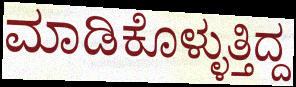
ಮಾಡಿಕೊಳ್ಳುತ್ತಿದ್ದ